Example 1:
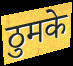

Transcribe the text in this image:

ठुमके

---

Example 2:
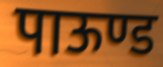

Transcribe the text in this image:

पाऊण्ड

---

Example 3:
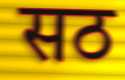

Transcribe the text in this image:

सठ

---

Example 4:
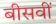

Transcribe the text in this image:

बीसवीं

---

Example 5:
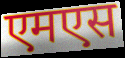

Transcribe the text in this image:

एमएस